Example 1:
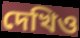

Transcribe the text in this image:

দেখিও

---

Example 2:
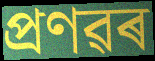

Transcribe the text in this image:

প্ৰণৱৰ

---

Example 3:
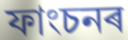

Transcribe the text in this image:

ফাংচনৰ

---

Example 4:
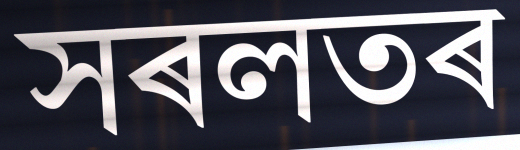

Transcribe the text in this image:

সৰলতৰ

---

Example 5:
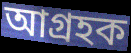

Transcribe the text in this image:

আগ্ৰহক